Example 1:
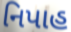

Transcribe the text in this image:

નિપાહ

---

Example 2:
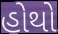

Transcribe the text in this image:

હોથો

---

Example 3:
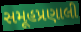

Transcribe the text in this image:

સમૂહપ્રણાલી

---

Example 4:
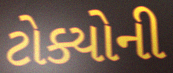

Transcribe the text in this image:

ટોક્યોની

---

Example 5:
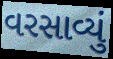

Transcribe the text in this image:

વરસાવ્યું